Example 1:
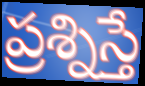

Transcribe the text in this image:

ప్రశ్నిస్తే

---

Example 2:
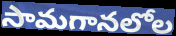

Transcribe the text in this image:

సామగానలోల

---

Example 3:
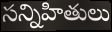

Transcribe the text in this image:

సన్నిహితులు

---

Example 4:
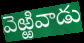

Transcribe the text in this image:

వెఱ్ఱివాడు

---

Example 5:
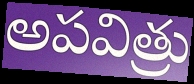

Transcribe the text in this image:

అపవిత్రు